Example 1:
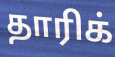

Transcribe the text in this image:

தாரிக்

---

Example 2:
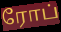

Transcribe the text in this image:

ரோப்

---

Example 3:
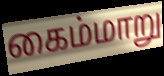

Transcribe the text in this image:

கைம்மாறு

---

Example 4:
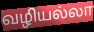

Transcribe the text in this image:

வழியல்லா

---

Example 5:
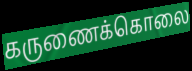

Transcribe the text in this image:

கருணைக்கொலை